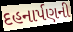
દહનાર્પણની